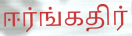
ஈர்ங்கதிர்